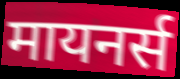
मायनर्स